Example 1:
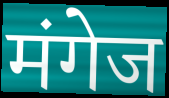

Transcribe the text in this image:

मंगेज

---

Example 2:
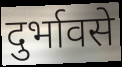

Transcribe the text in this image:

दुर्भावसे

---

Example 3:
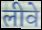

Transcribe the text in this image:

लीवे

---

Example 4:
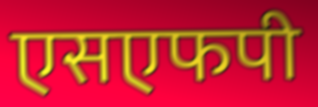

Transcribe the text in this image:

एसएफपी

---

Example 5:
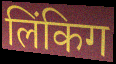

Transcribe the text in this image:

लिंकिग